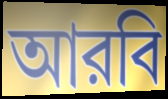
আরবি